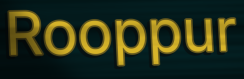
Rooppur